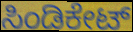
ಸಿಂಡಿಕೇಟ್